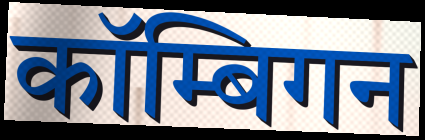
कॉम्बिगन